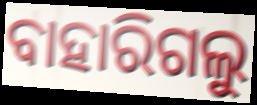
ବାହାରିଗଲୁ